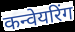
कन्वेयरिंग